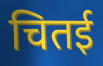
चितई